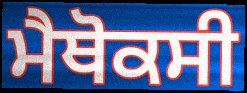
ਮੈਥੋਕਸੀ